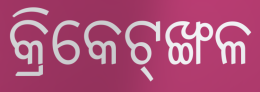
କ୍ରିକେଟ୍‌ଙ୍ଖଳ